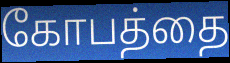
கோபத்தை